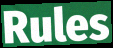
Rules